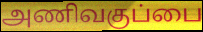
அணிவகுப்பை